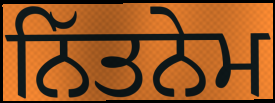
ਨਿੱਤਨੇਮ